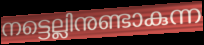
നട്ടെല്ലിനുണ്ടാകുന്ന